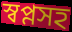
স্বপ্নসহ